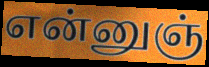
என்னுஞ்